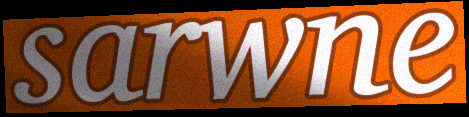
sarwne